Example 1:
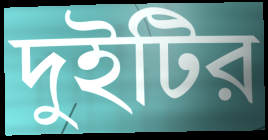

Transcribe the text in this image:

দুইটির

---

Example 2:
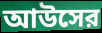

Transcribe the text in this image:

আউসের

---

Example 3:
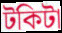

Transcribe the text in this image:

টকিটা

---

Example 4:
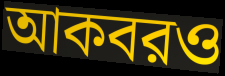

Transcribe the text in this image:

আকবরও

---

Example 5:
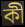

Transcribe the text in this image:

কী